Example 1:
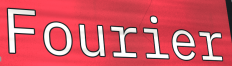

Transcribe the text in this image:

Fourier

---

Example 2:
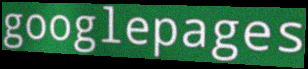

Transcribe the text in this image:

googlepages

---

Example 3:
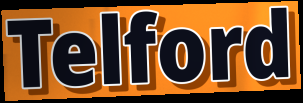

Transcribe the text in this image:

Telford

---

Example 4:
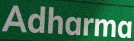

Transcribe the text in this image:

Adharma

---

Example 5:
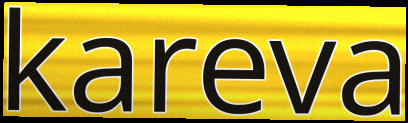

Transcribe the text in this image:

kareva